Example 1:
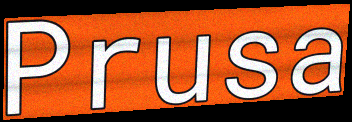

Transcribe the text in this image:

Prusa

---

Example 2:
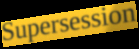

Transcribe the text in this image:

Supersession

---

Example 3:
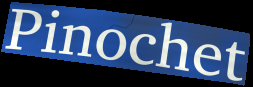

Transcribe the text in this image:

Pinochet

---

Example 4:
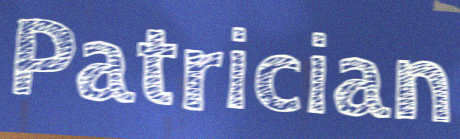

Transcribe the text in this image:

Patrician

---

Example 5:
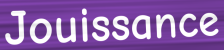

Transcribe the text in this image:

Jouissance